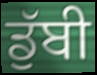
ਡੁੱਬੀ